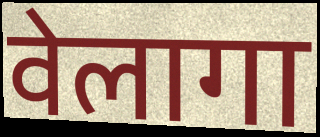
वेलागा